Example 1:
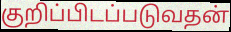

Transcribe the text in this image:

குறிப்பிடப்படுவதன்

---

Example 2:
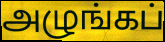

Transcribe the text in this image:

அழுங்கப்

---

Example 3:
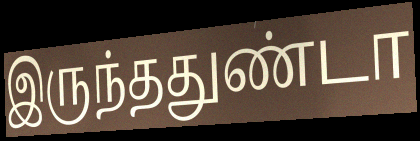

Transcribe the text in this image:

இருந்ததுண்டா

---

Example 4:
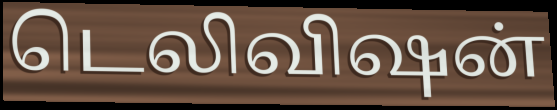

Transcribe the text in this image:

டெலிவிஷன்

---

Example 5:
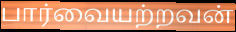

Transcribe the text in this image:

பார்வையற்றவன்